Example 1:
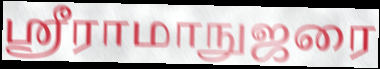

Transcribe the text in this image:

ஸ்ரீராமாநுஜரை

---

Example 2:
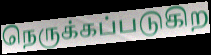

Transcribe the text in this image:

நெருக்கப்படுகிற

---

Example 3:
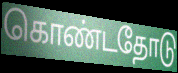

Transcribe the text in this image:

கொண்டதோடு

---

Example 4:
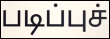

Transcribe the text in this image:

படிப்புச்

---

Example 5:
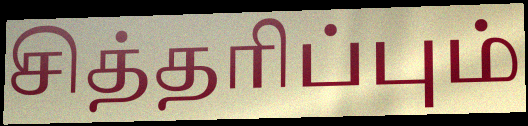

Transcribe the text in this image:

சித்தரிப்பும்